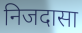
निजदासा